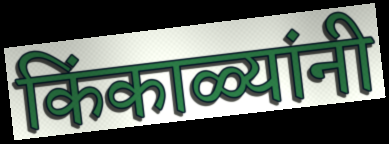
किंकाळ्यांनी